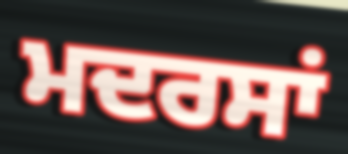
ਮਦਰਸਾਂ